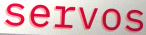
servos